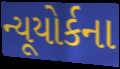
ન્યૂયોર્કના